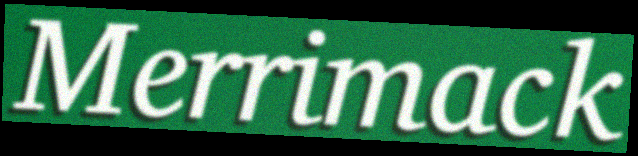
Merrimack